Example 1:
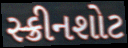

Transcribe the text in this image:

સ્ક્રીનશોટ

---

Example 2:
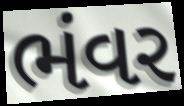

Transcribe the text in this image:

ભંવર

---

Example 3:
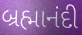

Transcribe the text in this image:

બ્રહ્માનંદી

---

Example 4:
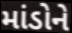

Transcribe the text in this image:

માંડોને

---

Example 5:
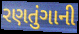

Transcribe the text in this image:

રણતુંગાની